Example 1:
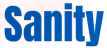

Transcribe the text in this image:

Sanity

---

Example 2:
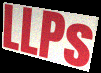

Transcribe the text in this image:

LLPs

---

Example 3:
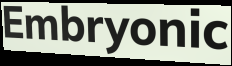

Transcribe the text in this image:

Embryonic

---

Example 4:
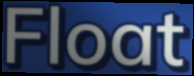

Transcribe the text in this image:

Float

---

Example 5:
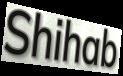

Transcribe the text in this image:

Shihab